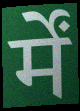
र्में